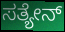
ಸತ್ಯೇನ್